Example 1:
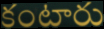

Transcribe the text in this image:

కంటారు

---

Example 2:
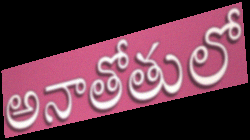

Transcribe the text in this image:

అనాతోతులో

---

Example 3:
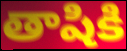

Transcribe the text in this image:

తాషికి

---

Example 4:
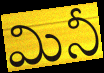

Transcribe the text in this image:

మినీ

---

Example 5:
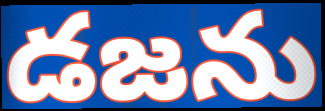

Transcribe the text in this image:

డజను